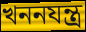
খননযন্ত্র